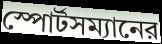
স্পোর্টসম্যানের